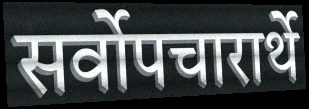
सर्वोपचारार्थे